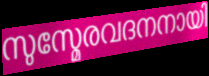
സുസ്മേരവദനനായി